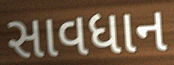
સાવધાન